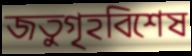
জতুগৃহবিশেষ